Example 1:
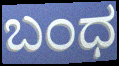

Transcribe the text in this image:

ಬಂಧ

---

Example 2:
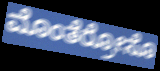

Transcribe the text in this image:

ಮೊಂತೆರ್ರೋಸೊ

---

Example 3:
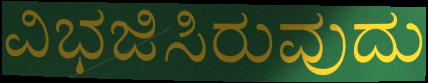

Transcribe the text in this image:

ವಿಭಜಿಸಿರುವುದು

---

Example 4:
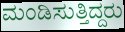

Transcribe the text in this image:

ಮಂಡಿಸುತ್ತಿದ್ದರು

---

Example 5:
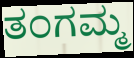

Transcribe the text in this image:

ತಂಗಮ್ಮ